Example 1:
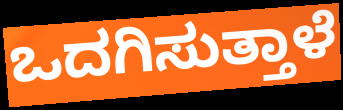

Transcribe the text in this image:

ಒದಗಿಸುತ್ತಾಳೆ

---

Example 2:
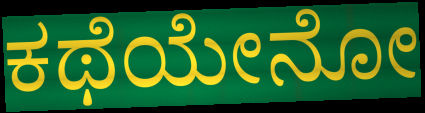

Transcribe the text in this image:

ಕಥೆಯೇನೋ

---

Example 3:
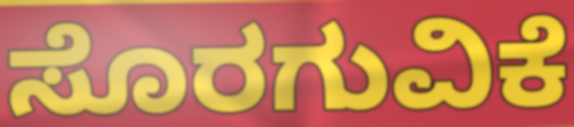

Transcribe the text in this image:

ಸೊರಗುವಿಕೆ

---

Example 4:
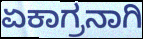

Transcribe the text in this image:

ಏಕಾಗ್ರನಾಗಿ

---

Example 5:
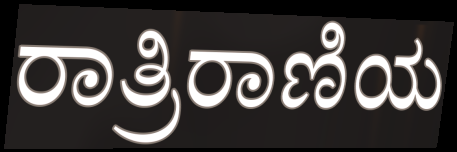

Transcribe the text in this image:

ರಾತ್ರಿರಾಣಿಯ